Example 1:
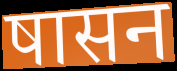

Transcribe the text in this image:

षासन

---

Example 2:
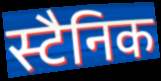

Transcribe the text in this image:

स्टैनिक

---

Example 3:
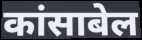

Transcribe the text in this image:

कांसाबेल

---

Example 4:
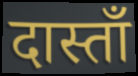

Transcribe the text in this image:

दास्ताँ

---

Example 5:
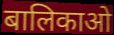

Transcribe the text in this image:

बालिकाओ